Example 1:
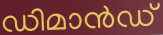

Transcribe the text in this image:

ഡിമാൻഡ്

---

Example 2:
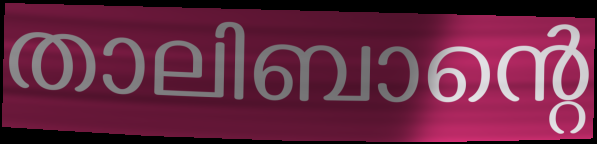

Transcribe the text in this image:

താലിബാന്റെ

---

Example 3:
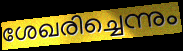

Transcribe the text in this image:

ശേഖരിച്ചെന്നും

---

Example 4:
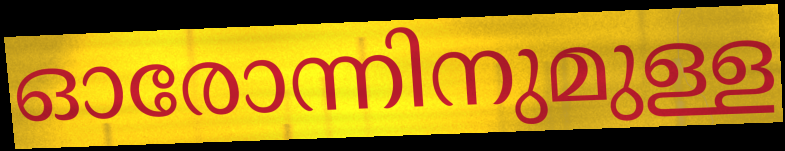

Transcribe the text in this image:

ഓരോന്നിനുമുള്ള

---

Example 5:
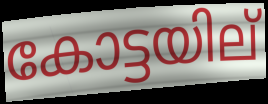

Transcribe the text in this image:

കോട്ടയില്